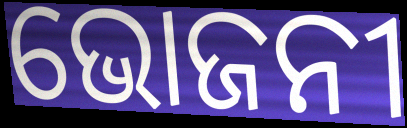
ଭୋଜନୀ